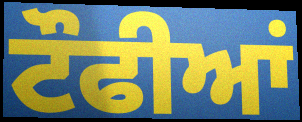
ਟੌਫੀਆਂ